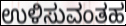
ಉಳಿಸುವಂತಹ